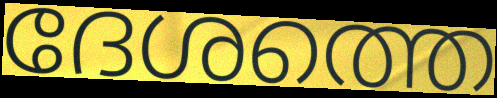
ദേശത്തെ